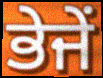
ਭੇਜੇਂ